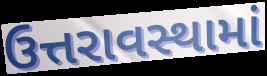
ઉત્તરાવસ્થામાં